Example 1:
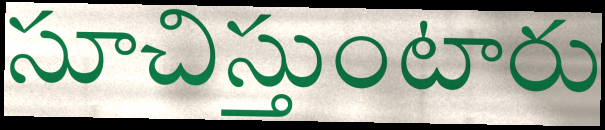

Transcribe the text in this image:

సూచిస్తుంటారు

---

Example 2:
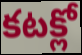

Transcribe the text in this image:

కటక్లో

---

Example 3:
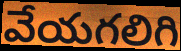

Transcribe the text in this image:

వేయగలిగి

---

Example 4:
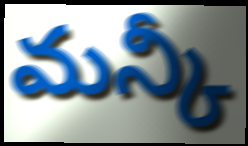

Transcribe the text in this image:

మన్కీ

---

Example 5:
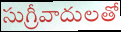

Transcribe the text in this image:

సుగ్రీవాదులతో